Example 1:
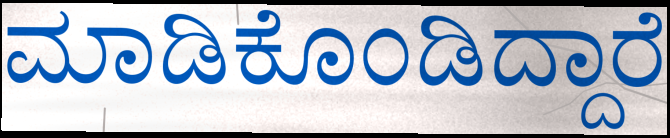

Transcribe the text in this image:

ಮಾಡಿಕೊಂಡಿದ್ದಾರೆ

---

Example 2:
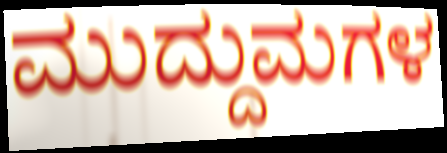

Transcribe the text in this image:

ಮುದ್ದುಮಗಳ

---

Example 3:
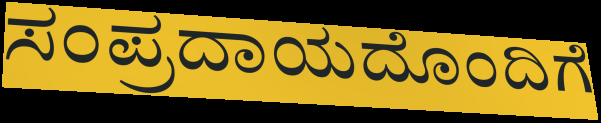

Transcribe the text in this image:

ಸಂಪ್ರದಾಯದೊಂದಿಗೆ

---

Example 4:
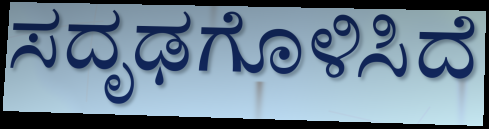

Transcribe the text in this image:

ಸದೃಢಗೊಳಿಸಿದೆ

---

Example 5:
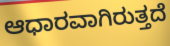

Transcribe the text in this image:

ಆಧಾರವಾಗಿರುತ್ತದೆ